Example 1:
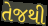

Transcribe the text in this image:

તેજથી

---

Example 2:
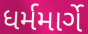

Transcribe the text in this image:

ધર્મમાર્ગે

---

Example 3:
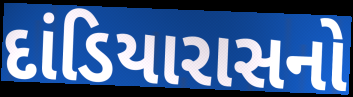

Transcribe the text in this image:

દાંડિયારાસનો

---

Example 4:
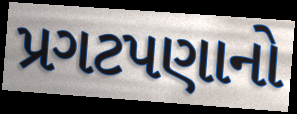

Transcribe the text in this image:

પ્રગટપણાનો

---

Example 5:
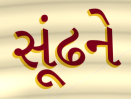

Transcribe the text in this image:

સૂંઢને